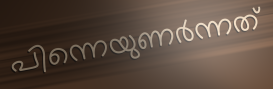
പിന്നെയുണർന്നത്